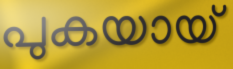
പുകയായ്